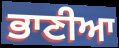
ਭਾਣੀਆ